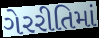
ગેરરીતિમાં